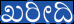
ಖರೀದಿ